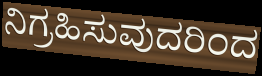
ನಿಗ್ರಹಿಸುವುದರಿಂದ